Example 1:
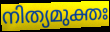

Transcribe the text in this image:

നിത്യമുക്തഃ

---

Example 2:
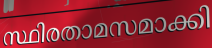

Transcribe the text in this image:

സ്ഥിരതാമസമാക്കി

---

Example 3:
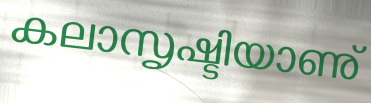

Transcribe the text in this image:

കലാസൃഷ്ടിയാണു്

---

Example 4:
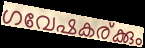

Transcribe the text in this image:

ഗവേഷകര്ക്കും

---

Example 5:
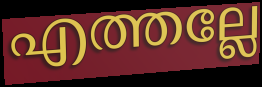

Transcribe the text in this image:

എത്തല്ലേ